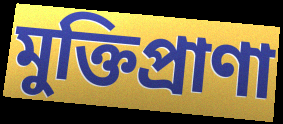
মুক্তিপ্রাণা